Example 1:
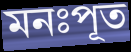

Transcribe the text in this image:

মনঃপূত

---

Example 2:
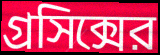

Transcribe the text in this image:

গ্রসিক্সের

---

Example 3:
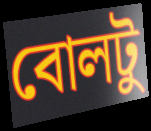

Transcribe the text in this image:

বোলটু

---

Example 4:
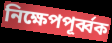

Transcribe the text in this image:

নিক্ষেপপূর্ব্বক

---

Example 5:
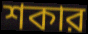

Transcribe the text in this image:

শকার